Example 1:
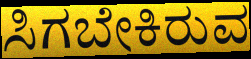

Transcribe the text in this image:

ಸಿಗಬೇಕಿರುವ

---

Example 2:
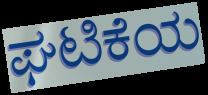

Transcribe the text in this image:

ಘಟಿಕೆಯ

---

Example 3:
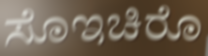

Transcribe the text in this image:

ಸೊಇಚಿರೊ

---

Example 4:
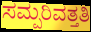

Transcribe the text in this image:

ಸಮ್ಪರಿವತ್ತತಿ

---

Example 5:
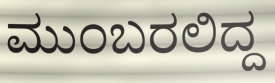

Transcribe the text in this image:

ಮುಂಬರಲಿದ್ದ